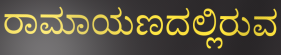
ರಾಮಾಯಣದಲ್ಲಿರುವ